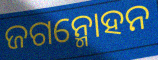
ଜଗନ୍ମୋହନ